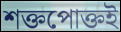
শক্তপোক্তই